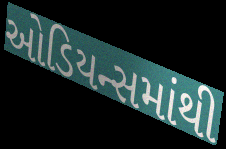
ઓડિયન્સમાંથી